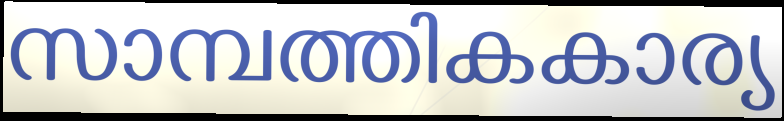
സാമ്പത്തികകാര്യ